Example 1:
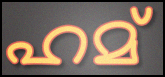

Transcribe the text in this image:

ഹമ്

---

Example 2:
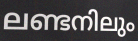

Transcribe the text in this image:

ലണ്ടനിലും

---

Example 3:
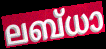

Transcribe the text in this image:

ലബ്ധാ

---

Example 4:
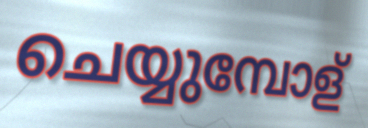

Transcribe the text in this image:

ചെയ്യുമ്പോള്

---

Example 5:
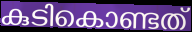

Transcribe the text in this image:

കുടികൊണ്ടത്